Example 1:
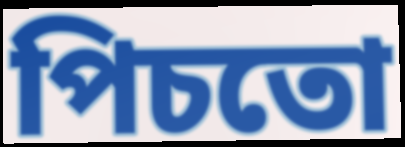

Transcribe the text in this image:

পিচতো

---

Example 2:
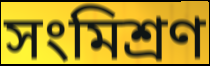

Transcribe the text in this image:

সংমিশ্ৰণ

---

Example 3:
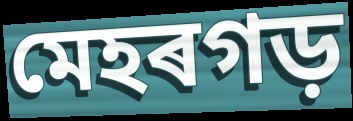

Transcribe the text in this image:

মেহৰগড়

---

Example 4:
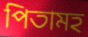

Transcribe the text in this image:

পিতামহ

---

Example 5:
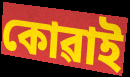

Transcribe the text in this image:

কোৱাই